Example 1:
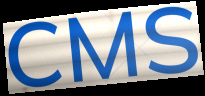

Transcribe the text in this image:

CMS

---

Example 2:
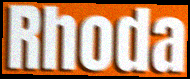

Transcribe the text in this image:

Rhoda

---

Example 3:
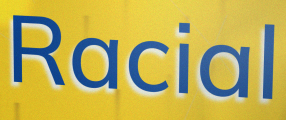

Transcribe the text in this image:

Racial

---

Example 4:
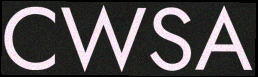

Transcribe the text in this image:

CWSA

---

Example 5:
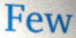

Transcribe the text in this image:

Few